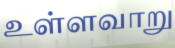
உள்ளவாறு